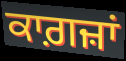
ਕਾਗ਼ਜ਼ਾਂ